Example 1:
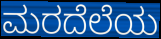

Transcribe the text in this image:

ಮರದೆಲೆಯ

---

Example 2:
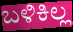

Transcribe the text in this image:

ಬಳಿಕಿಲ್ಲ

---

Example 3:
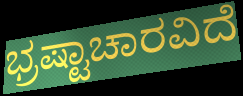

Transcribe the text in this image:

ಭ್ರಷ್ಟಾಚಾರವಿದೆ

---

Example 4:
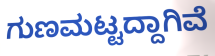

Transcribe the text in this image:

ಗುಣಮಟ್ಟದ್ದಾಗಿವೆ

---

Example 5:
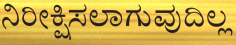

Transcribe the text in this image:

ನಿರೀಕ್ಷಿಸಲಾಗುವುದಿಲ್ಲ